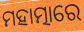
ମହାତ୍ମାରେ